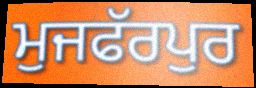
ਮੁਜਫੱਰਪੁਰ